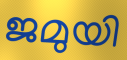
ജമുയി